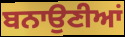
ਬਨਾਉਣੀਆਂ